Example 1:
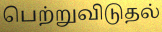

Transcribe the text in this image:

பெற்றுவிடுதல்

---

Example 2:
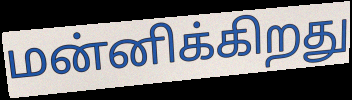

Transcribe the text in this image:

மன்னிக்கிறது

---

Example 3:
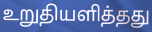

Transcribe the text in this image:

உறுதியளித்தது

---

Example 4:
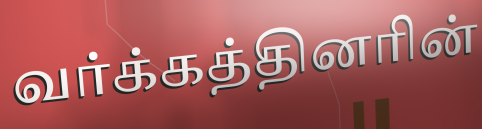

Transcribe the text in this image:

வர்க்கத்தினரின்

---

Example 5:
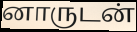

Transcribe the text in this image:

னாருடன்